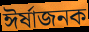
ঈর্ষাজনক